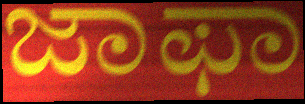
ಜಾಫಾ